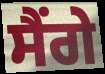
ਸੈਂਗੇ